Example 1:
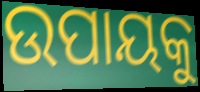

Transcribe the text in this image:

ଉପାୟକୁ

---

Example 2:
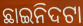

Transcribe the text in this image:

ଛାଇନିଦଟା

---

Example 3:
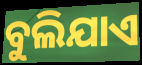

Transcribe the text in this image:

ବୁଲିଯାଏ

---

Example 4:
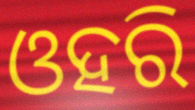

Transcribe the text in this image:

ଓହରି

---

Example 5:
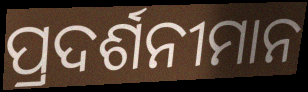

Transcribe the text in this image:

ପ୍ରଦର୍ଶନୀମାନ